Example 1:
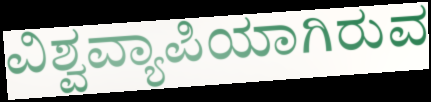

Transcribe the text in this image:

ವಿಶ್ವವ್ಯಾಪಿಯಾಗಿರುವ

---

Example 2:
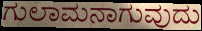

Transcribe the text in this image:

ಗುಲಾಮನಾಗುವುದು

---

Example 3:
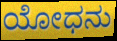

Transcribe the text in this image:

ಯೋಧನು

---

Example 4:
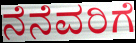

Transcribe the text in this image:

ನೆನೆವರಿಗೆ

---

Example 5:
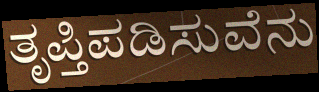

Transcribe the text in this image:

ತೃಪ್ತಿಪಡಿಸುವೆನು